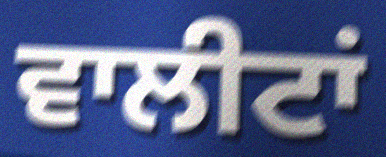
ਵਾਲੀਟਾਂ